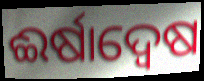
ଈର୍ଷାଦ୍ଵେଷ